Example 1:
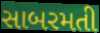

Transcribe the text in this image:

સાબરમતી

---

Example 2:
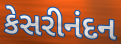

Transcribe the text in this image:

કેસરીનંદન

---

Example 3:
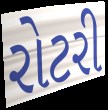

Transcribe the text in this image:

રોટરી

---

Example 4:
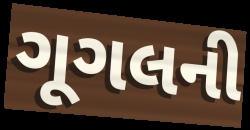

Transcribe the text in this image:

ગૂગલની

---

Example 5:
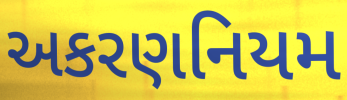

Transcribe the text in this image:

અકરણનિયમ